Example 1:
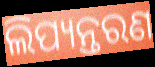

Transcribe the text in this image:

ଲିପ୍ୟନ୍ତରଣ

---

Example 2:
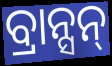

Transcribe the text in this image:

ବ୍ରାନ୍ସନ୍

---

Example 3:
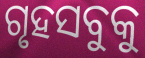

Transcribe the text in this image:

ଗୃହସବୁକୁ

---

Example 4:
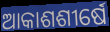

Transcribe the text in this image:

ଆକାଶଶୀର୍ଷେ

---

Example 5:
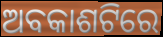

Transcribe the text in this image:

ଅବକାଶଟିରେ